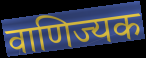
वाणिज्यक